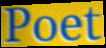
Poet